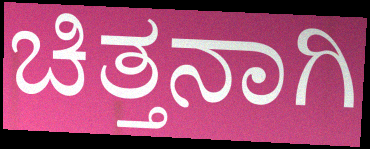
ಚಿತ್ತನಾಗಿ